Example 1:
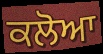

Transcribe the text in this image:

ਕਲੋਆ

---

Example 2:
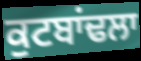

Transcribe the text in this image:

ਕੁਟਬਾਂਢਲਾ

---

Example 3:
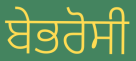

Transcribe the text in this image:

ਬੇਭਰੋਸੀ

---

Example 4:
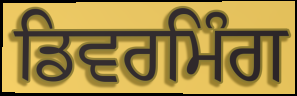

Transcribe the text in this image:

ਡਿਵਰਮਿੰਗ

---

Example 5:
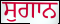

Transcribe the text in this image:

ਸੁਗਾਨ